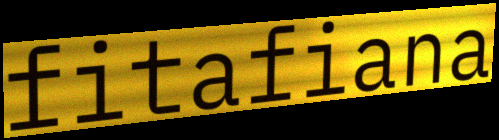
fitafiana